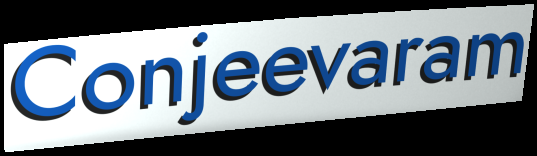
Conjeevaram